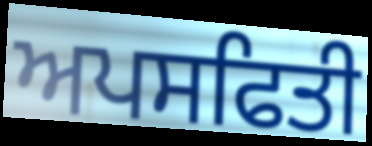
ਅਪਸਫਿਤੀ